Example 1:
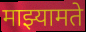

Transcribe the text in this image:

माझ्यामते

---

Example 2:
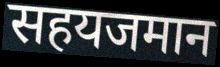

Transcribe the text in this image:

सहयजमान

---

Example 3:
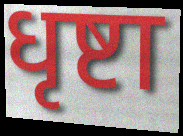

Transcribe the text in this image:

धृष्टा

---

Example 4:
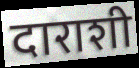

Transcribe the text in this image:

दाराशी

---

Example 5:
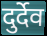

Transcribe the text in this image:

दुर्देव